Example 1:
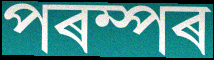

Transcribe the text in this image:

পৰম্পৰ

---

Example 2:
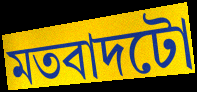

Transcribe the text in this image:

মতবাদটো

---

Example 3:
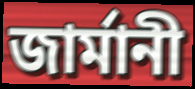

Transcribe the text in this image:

জাৰ্মানী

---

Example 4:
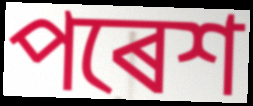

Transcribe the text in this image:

পৰেশ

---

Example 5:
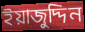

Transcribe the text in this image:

ইয়াজুদ্দিন